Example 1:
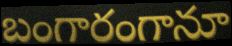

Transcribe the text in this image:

బంగారంగానూ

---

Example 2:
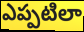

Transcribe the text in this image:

ఎప్పటిలా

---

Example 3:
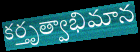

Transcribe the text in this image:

కర్తృత్వాభిమాన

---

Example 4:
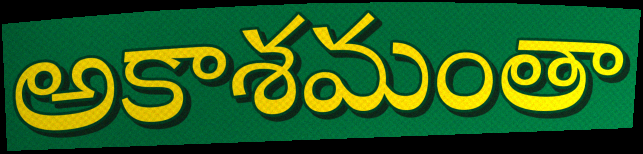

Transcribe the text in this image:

అకాశమంతా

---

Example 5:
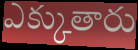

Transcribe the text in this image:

ఎక్కుతారు